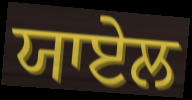
ਯਾਏਲ